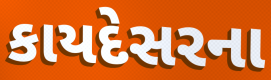
કાયદેસરના